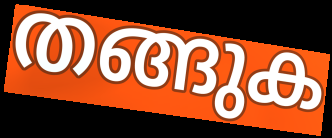
തങ്ങുക